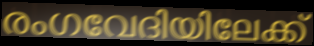
രംഗവേദിയിലേക്ക്